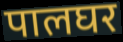
पालघर